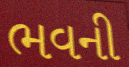
ભવની